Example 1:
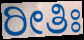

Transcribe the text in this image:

ರೀತಿಃ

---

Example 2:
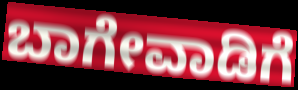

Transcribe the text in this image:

ಬಾಗೇವಾಡಿಗೆ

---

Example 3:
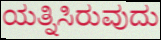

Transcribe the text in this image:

ಯತ್ನಿಸಿರುವುದು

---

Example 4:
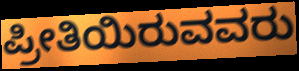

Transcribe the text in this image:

ಪ್ರೀತಿಯಿರುವವರು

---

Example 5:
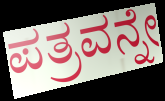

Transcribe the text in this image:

ಪತ್ರವನ್ನೇ